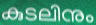
കുടലിനും